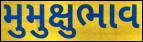
મુમુક્ષુભાવ